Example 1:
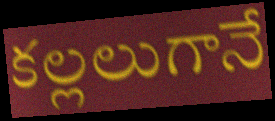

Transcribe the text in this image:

కల్లలుగానే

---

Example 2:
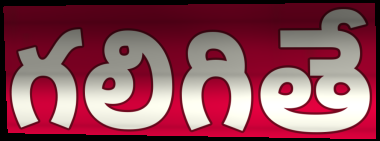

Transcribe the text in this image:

గలిగితే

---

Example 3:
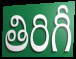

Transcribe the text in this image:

తిరిగీ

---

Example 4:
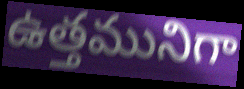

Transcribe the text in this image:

ఉత్తమునిగా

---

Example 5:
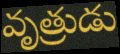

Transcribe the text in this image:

వృత్రుడు